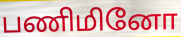
பணிமினோ